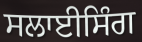
ਸਲਾਈਸਿੰਗ